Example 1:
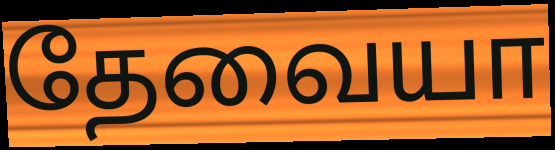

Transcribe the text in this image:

தேவையா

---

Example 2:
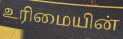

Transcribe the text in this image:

உரிமையின்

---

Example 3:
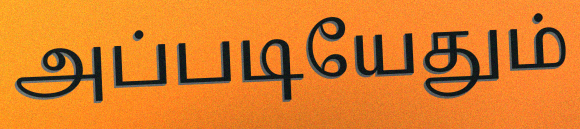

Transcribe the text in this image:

அப்படியேதும்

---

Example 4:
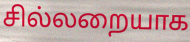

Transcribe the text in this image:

சில்லறையாக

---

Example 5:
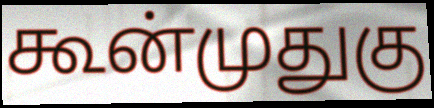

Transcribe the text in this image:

கூன்முதுகு